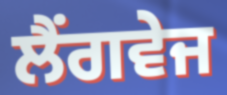
ਲੈਂਗਵੇਜ